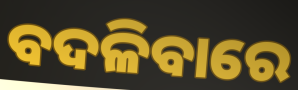
ବଦଳିବାରେ